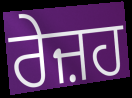
ਰੇਜ਼ਹ